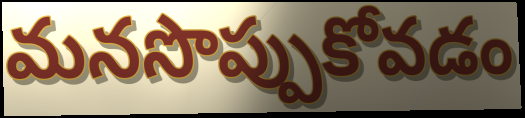
మనసొప్పుకోవడం